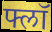
फ्लॉ